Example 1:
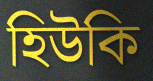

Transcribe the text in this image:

হিউকি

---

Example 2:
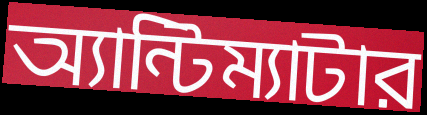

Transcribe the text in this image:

অ্যান্টিম্যাটার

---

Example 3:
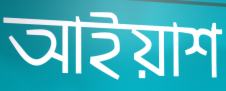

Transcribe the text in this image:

আইয়াশ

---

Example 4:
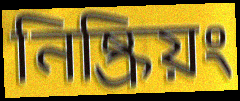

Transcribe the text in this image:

নিষ্ক্রিয়ং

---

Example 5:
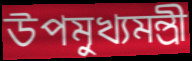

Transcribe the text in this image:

উপমুখ্যমন্ত্রী